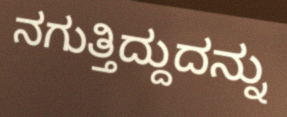
ನಗುತ್ತಿದ್ದುದನ್ನು